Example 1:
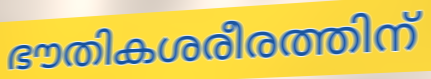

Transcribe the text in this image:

ഭൗതികശരീരത്തിന്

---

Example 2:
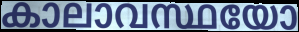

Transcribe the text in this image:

കാലാവസ്ഥയോ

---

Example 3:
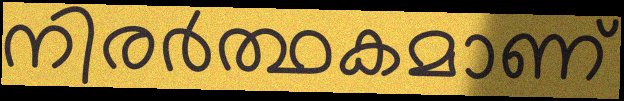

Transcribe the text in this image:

നിരർത്ഥകമാണ്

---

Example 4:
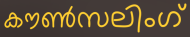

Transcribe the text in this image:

കൗൺസലിംഗ്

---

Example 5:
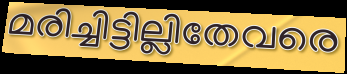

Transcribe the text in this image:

മരിച്ചിട്ടില്ലിതേവരെ